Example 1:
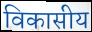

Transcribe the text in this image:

विकासीय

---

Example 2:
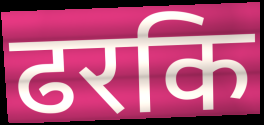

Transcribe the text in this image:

ढरकि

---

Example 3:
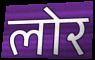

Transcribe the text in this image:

लोर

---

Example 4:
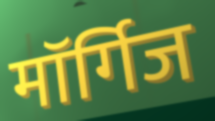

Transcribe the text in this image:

मॉर्गिज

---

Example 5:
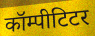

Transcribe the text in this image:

कॉम्पीटिटर